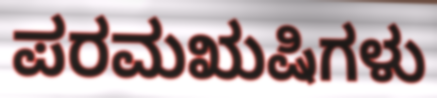
ಪರಮಋಷಿಗಳು